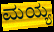
ಮಯ್ಯ